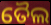
ତୈଲ